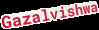
Gazalvishwa